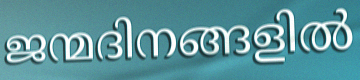
ജന്മദിനങ്ങളിൽ